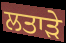
ਲਤਾਡ਼ੇ